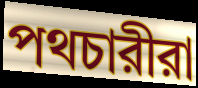
পথচারীরা